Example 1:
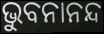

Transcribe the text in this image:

ଭୁବନାନନ୍ଦ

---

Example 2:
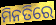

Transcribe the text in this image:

ମିନତିରେ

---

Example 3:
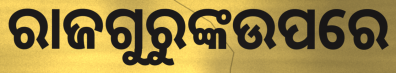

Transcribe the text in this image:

ରାଜଗୁରୁଙ୍କଉପରେ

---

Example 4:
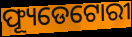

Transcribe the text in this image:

ଫ୍ୟୂଡେଟୋରୀ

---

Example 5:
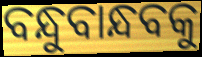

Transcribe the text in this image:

ବନ୍ଧୁବାନ୍ଧବକୁ